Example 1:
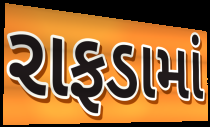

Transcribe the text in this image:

રાફડામાં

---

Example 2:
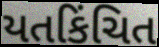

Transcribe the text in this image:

યતકિંચિત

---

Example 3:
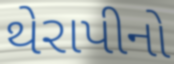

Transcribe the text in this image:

થેરાપીનો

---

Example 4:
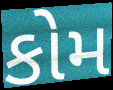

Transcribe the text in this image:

કોમ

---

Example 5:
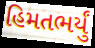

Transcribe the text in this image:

હિમતભર્યું